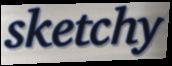
sketchy